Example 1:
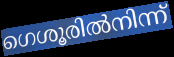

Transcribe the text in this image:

ഗെശൂരിൽനിന്ന്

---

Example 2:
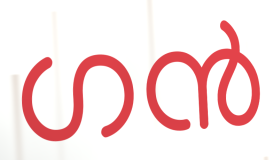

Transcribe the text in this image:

ഗൻ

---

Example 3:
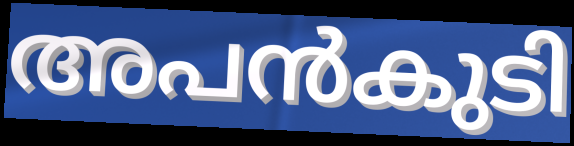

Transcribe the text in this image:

അപൻകുടി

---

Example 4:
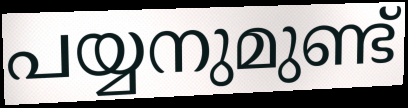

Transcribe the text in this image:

പയ്യനുമുണ്ട്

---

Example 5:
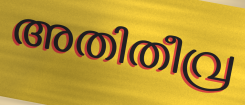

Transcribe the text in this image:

അതിതീവ്ര